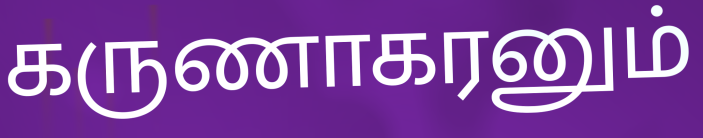
கருணாகரனும்